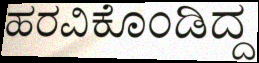
ಹರವಿಕೊಂಡಿದ್ದ